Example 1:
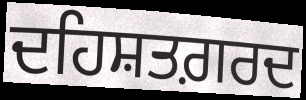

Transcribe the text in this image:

ਦਹਿਸ਼ਤਗ਼ਰਦ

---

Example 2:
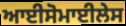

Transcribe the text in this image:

ਆਈਸੋਮਾਈਲੇਸ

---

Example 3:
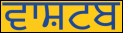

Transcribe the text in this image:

ਵਾਸ਼ਟਬ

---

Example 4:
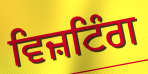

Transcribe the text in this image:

ਵਿਜ਼ਟਿੰਗ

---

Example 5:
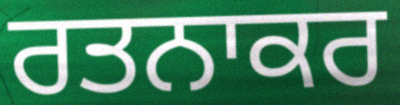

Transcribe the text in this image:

ਰਤਨਾਕਰ